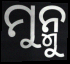
ମୁନ୍ମୁ